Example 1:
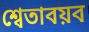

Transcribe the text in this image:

শ্বেতাবয়ব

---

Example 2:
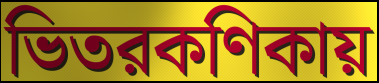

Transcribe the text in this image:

ভিতরকণিকায়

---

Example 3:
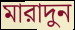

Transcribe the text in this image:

মারাদুন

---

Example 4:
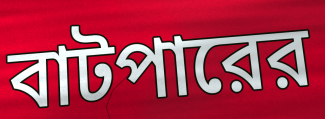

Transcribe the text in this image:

বাটপারের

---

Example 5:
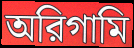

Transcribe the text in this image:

অরিগামি